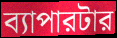
ব্যাপারটার